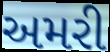
અમરી